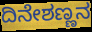
ದಿನೇಶಣ್ಣನ